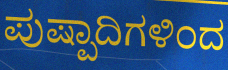
ಪುಷ್ಪಾದಿಗಳಿಂದ